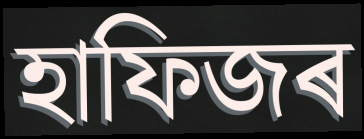
হাফিজৰ